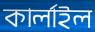
কার্লাইল